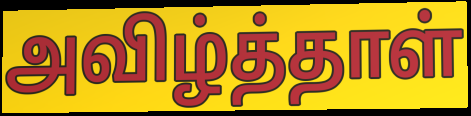
அவிழ்த்தாள்